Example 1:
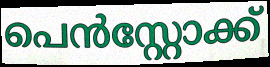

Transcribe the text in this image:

പെൻസ്റ്റോക്ക്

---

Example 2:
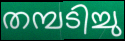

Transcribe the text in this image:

തമ്പടിച്ചു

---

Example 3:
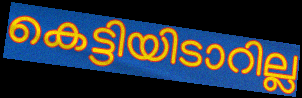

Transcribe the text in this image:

കെട്ടിയിടാറില്ല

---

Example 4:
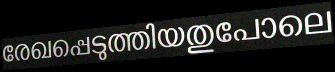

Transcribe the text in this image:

രേഖപ്പെടുത്തിയതുപോലെ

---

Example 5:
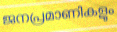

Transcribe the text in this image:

ജനപ്രമാണികളും